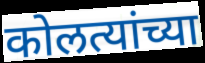
कोलत्यांच्या